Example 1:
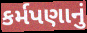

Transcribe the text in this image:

કર્મપણાનું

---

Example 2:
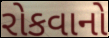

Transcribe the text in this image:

રોકવાનો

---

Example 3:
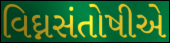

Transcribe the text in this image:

વિઘ્નસંતોષીએ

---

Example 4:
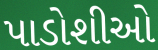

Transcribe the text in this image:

પાડોશીઓ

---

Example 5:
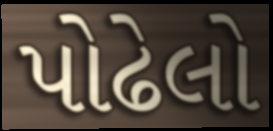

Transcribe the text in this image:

પોઢેલો